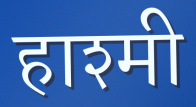
हाश्मी